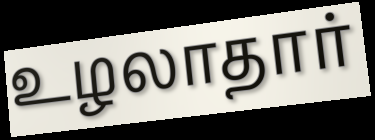
உழலாதார்